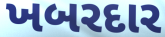
ખબરદાર